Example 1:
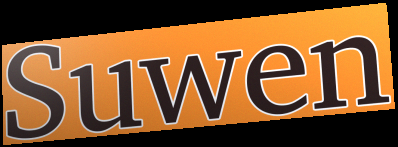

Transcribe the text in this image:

Suwen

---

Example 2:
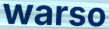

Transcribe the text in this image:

warso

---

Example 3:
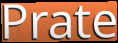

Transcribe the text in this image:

Prate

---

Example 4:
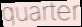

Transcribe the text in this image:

quarter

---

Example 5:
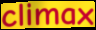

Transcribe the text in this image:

climax